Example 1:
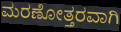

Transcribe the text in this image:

ಮರಣೋತ್ತರವಾಗಿ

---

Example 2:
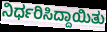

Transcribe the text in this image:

ನಿರ್ಧರಿಸಿದ್ದಾಯಿತು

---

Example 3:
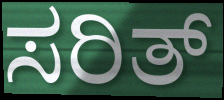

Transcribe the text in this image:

ಸರಿತ್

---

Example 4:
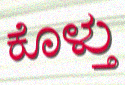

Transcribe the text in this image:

ಕೊಳ್ತು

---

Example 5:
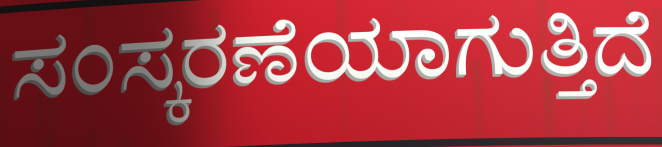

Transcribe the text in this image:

ಸಂಸ್ಕರಣೆಯಾಗುತ್ತಿದೆ